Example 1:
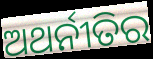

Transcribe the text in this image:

ଅଥର୍ନୀତିର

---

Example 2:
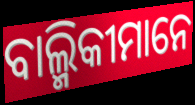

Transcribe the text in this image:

ବାଲ୍ମିକୀମାନେ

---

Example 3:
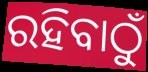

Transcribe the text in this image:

ରହିବାଠୁଁ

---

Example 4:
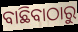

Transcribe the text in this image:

ବାଛିବାଠାରୁ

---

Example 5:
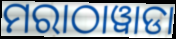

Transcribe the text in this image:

ମରାଠାୱାଡା